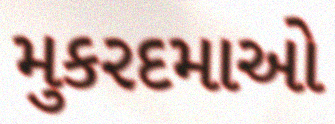
મુકરદમાઓ